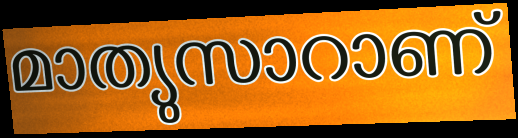
മാത്യുസാറാണ്